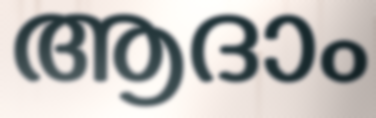
ആദാം